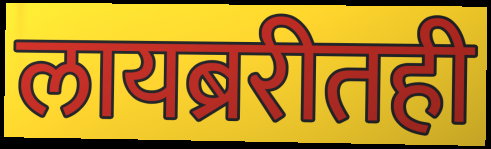
लायब्ररीतही